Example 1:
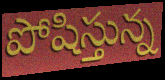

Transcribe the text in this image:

పోషిస్తున్న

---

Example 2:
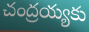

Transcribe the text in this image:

చంద్రయ్యకు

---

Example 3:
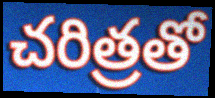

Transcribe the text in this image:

చరిత్రతో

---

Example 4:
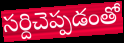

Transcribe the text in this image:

సర్దిచెప్పడంతో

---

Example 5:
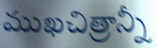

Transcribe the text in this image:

ముఖచిత్రాన్నీ